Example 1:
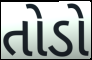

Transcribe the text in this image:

તોડો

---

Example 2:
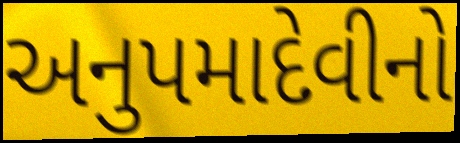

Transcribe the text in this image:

અનુપમાદેવીનો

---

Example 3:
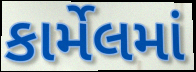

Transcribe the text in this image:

કાર્મેલમાં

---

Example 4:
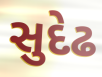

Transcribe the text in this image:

સુદેઢ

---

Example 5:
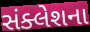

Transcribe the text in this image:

સંક્લેશના